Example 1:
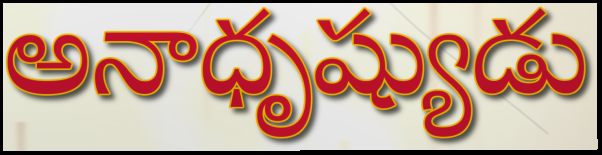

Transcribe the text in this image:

అనాధృష్యుడు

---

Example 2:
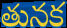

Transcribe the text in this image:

తునక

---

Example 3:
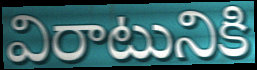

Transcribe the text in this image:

విరాటునికి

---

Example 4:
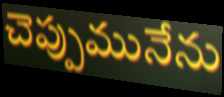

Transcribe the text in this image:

చెప్పుమునేను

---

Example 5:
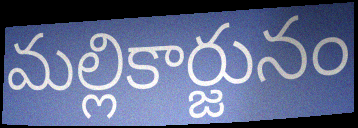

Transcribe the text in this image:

మల్లికార్జునం